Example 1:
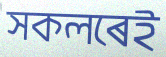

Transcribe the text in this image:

সকলৰেই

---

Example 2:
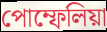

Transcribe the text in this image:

পোম্ফেলিয়া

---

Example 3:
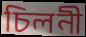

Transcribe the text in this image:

চিলনী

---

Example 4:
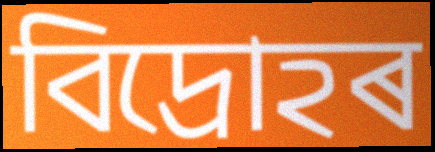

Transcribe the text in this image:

বিদ্ৰোহৰ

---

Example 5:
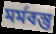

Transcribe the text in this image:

মৰ্মবস্তু